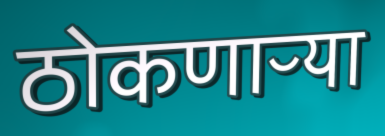
ठोकणाऱ्या